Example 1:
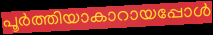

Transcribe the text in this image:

പൂർത്തിയാകാറായപ്പോൾ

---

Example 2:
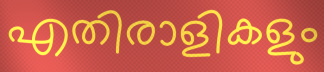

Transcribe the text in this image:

എതിരാളികളും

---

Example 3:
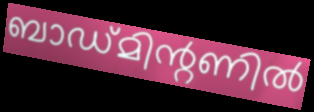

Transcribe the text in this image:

ബാഡ്മിന്റണിൽ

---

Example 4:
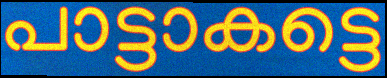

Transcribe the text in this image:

പാട്ടാകട്ടെ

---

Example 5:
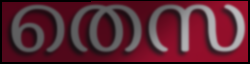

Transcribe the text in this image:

തെസ